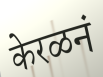
केरळनं